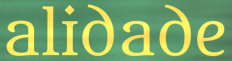
alidade